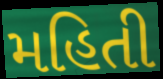
મહિતી